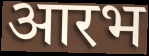
आरभ